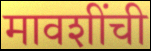
मावशींची